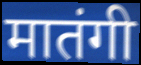
मातंगी